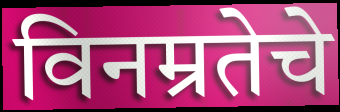
विनम्रतेचे